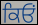
ਕਿਓਂ